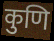
कुणि